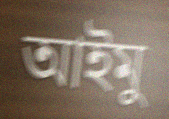
আইমু